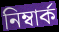
নিম্বাৰ্ক